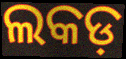
ଲକଡ଼